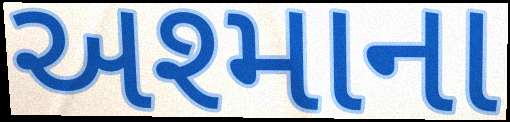
અશ્માના